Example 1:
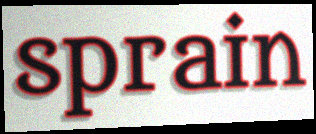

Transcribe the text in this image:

sprain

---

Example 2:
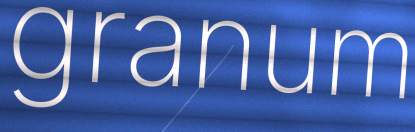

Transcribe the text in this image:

granum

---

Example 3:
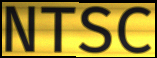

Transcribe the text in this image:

NTSC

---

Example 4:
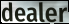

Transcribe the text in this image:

dealer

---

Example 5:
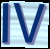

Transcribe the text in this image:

IV